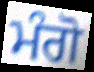
ਮੰਗੋ